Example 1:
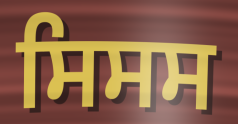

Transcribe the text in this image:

ਸਿਸਸ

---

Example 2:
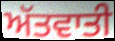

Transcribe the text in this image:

ਅੱਤਵਾਤੀ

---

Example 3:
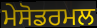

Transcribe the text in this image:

ਮੇਸੋਡਰਮਲ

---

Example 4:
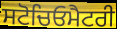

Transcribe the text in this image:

ਸਟੋਚਿਓਮੈਟਰੀ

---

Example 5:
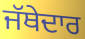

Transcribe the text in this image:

ਜੱਥੇਦਾਰ